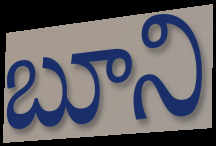
బూని